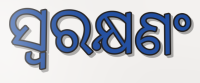
ସ୍ୱରକ୍ଷଣଂ